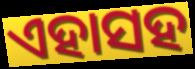
ଏହାସହ